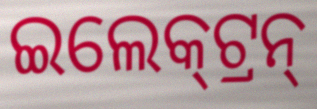
ଇଲେକ୍‍ଟ୍ରନ୍